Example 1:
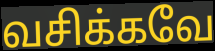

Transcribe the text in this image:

வசிக்கவே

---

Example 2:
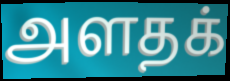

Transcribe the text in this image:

அளதக்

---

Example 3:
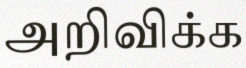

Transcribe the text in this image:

அறிவிக்க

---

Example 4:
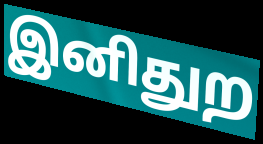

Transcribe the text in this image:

இனிதுற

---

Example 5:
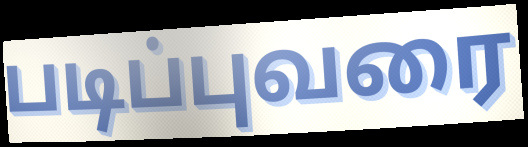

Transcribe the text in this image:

படிப்புவரை